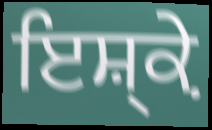
ਇਸ਼੍ਕ਼ੇ